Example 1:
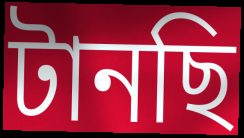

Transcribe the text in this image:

টানছি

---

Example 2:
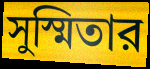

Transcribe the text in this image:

সুস্মিতার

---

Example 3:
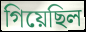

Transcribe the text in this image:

গিয়েছিল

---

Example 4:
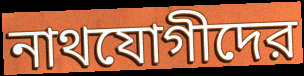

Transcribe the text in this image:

নাথযোগীদের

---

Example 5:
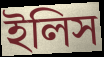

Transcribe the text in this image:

ইলিস